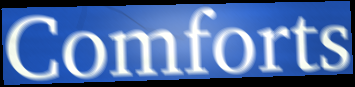
Comforts